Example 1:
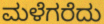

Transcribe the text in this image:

ಮಳೆಗರೆದು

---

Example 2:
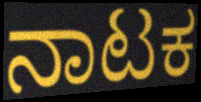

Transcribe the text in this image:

ನಾಟಕ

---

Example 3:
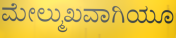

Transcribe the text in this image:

ಮೇಲ್ಮುಖವಾಗಿಯೂ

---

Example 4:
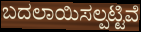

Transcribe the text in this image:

ಬದಲಾಯಿಸಲ್ಪಟ್ಟಿವೆ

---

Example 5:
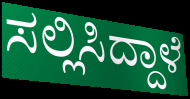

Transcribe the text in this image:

ಸಲ್ಲಿಸಿದ್ದಾಳೆ